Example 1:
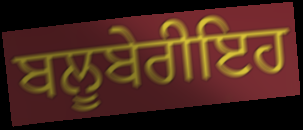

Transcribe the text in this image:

ਬਲੂਬੇਰੀਇਹ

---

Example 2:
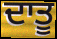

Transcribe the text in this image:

ਦਾਤੂ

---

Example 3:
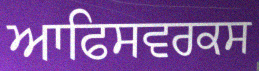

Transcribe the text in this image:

ਆਫਿਸਵਰਕਸ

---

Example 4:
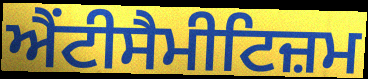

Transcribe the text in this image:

ਐਂਟੀਸੈਮੀਟਿਜ਼ਮ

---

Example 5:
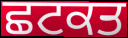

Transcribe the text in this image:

ਛਟਕਤ